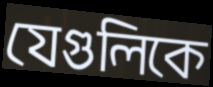
যেগুলিকে